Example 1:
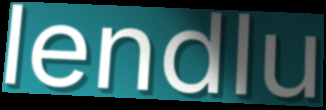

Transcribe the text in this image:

lendlu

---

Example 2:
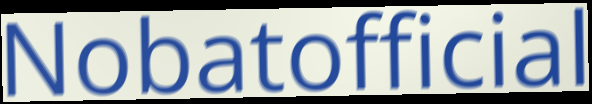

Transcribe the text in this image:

Nobatofficial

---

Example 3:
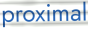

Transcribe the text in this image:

proximal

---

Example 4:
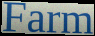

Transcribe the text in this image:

Farm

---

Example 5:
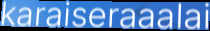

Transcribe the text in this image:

karaiseraaalai